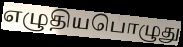
எழுதியபொழுது